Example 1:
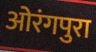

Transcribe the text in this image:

ओरंगपुरा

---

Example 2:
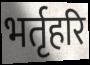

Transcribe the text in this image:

भर्तृहरि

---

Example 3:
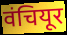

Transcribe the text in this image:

वंचियूर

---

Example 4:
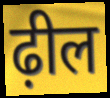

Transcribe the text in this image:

ढ़ील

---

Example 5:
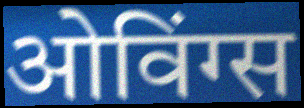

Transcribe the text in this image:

ओविंग्स